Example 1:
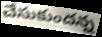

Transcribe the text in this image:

చేసుకుందన్న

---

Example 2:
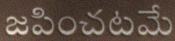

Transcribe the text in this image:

జపించటమే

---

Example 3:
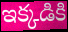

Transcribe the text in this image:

ఇక్కడికి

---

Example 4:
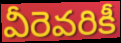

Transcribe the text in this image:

వీరెవరికీ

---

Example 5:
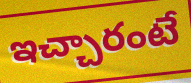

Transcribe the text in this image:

ఇచ్చారంటే